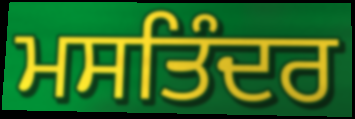
ਮਸਤਿੰਦਰ